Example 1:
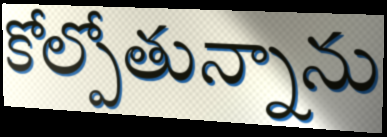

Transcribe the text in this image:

కోల్పోతున్నాను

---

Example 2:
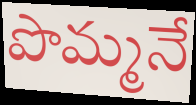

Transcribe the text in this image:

పొమ్మనే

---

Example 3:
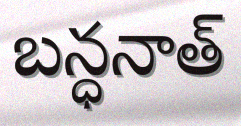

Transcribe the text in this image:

బన్ధనాత్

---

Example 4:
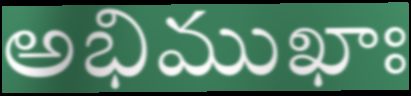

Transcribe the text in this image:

అభిముఖాః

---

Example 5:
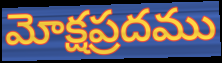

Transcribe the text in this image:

మోక్షప్రదము